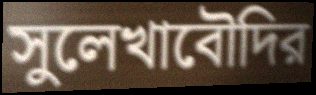
সুলেখাবৌদির